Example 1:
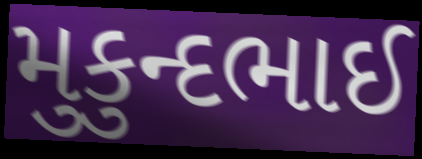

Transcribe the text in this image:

મુકુન્દભાઈ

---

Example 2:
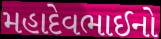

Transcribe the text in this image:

મહાદેવભાઈનો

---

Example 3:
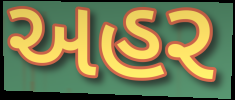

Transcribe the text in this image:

અહર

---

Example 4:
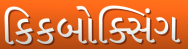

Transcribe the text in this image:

કિકબોક્સિંગ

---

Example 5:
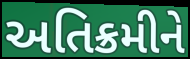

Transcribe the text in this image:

અતિક્રમીને